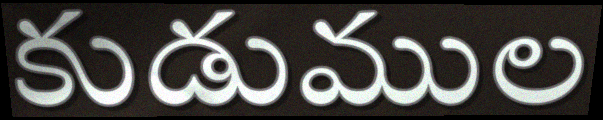
కుడుముల